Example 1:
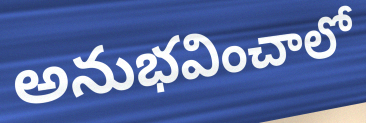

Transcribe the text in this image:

అనుభవించాలో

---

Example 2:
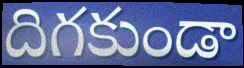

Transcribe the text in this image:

దిగకుండా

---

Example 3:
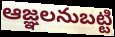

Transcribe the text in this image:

ఆజ్ఞలనుబట్టి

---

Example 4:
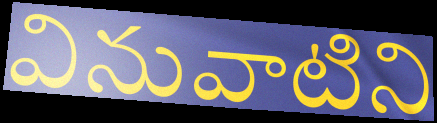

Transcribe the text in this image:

వినువాటిని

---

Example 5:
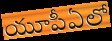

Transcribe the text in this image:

యూపీఏలో